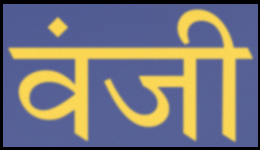
वंजी